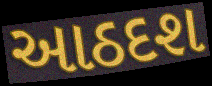
આઠદશ